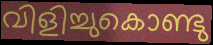
വിളിച്ചുകൊണ്ടു